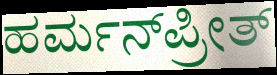
ಹರ್ಮನ್‌ಪ್ರೀತ್